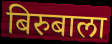
बिरुबाला